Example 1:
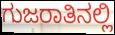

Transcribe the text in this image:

ಗುಜರಾತಿನಲ್ಲಿ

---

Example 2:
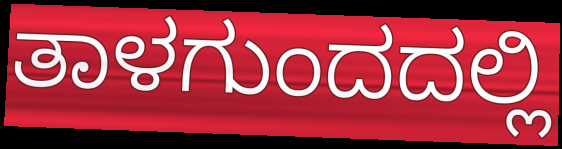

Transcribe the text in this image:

ತಾಳಗುಂದದಲ್ಲಿ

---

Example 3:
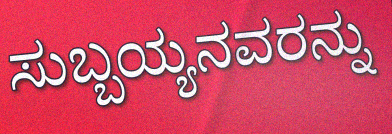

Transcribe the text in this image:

ಸುಬ್ಬಯ್ಯನವರನ್ನು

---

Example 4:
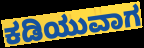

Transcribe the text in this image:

ಕಡಿಯುವಾಗ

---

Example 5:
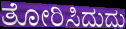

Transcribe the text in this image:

ತೋರಿಸಿದುದು